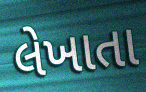
લેખાતા